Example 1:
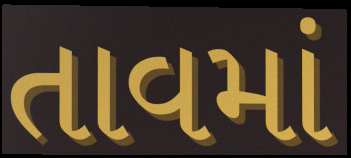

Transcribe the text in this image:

તાવમાં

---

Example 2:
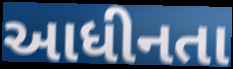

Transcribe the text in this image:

આધીનતા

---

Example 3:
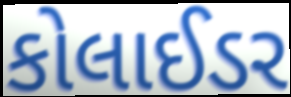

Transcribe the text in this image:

કોલાઈડર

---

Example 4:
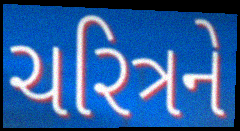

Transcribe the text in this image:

ચરિત્રને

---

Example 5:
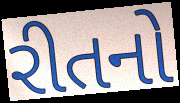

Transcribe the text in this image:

રીતનો